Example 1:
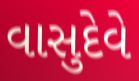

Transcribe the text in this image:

વાસુદેવે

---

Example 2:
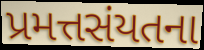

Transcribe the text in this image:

પ્રમત્તસંયતના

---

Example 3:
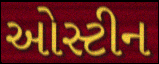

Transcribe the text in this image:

ઓસ્ટીન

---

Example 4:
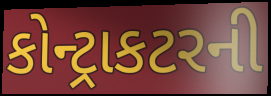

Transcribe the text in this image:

કોન્ટ્રાકટરની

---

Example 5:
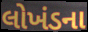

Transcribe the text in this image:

લોખંડના